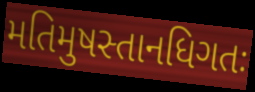
મતિમુષસ્તાનધિગતઃ